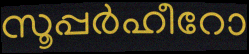
സൂപ്പർഹീറോ